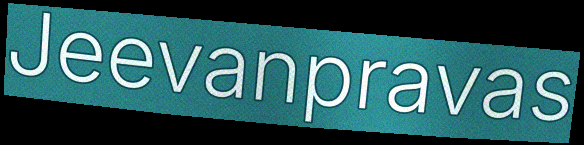
Jeevanpravas